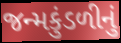
જન્મકુંડળીનું